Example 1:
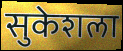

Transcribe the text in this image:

सुकेशला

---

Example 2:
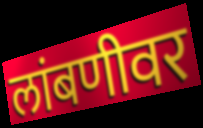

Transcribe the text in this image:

लांबणीवर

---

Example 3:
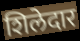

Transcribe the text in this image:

शिलेदार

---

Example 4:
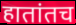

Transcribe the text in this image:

हातांतच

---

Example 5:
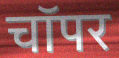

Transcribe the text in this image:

चॉपर